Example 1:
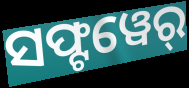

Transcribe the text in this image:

ସଫ୍ଟୱେର୍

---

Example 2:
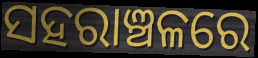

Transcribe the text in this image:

ସହରାଞ୍ଚଳରେ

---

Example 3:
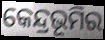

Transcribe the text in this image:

କେନ୍ଦ୍ରଭୂମିର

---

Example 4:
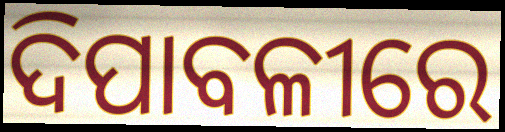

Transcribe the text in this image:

ଦିପାବଳୀରେ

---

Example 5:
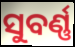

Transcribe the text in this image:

ସୁବର୍ଣ୍ଣ